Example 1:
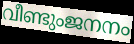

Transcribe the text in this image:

വീണ്ടുംജനനം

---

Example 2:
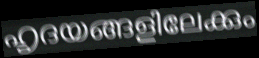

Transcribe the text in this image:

ഹൃദയങ്ങളിലേക്കും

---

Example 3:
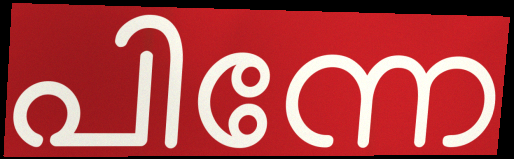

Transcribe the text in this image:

പിന്നേ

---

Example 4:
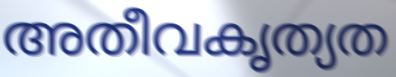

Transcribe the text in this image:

അതീവകൃത്യത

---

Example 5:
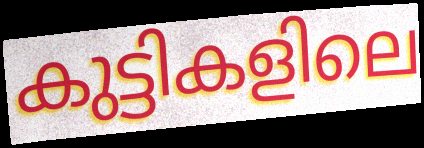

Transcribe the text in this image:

കുട്ടികളിലെ